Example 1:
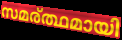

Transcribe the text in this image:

സമര്ത്ഥമായി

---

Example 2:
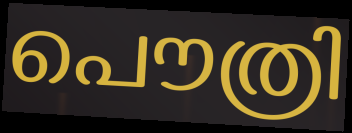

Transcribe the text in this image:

പൌത്രി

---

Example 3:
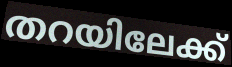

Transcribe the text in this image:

തറയിലേക്ക്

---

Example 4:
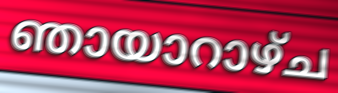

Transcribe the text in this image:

ഞായാറാഴ്ച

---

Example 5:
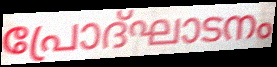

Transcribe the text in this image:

പ്രോദ്ഘാടനം